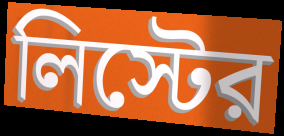
লিস্টের